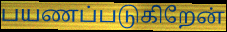
பயணப்படுகிறேன்